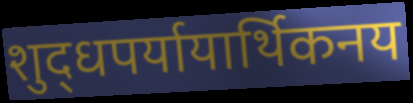
शुद्धपर्यायार्थिकनय